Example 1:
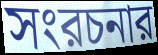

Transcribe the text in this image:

সংরচনার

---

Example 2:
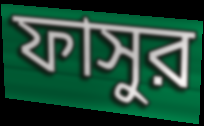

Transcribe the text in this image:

ফাসুর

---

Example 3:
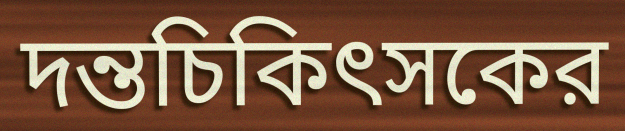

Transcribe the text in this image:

দন্তচিকিৎসকের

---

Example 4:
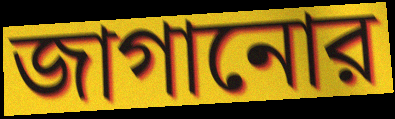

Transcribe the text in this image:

জাগানোর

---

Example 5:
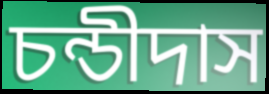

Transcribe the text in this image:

চন্ডীদাস